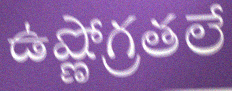
ఉష్ణోగ్రతలే